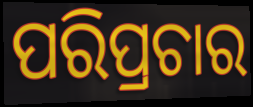
ପରିପ୍ରଚାର